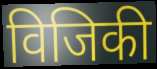
विजिकी